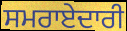
ਸਮਰਾਏਦਾਰੀ